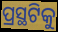
ପ୍ରସ୍ଥଟିକୁ